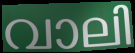
വാലി